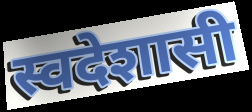
स्वदेशासी